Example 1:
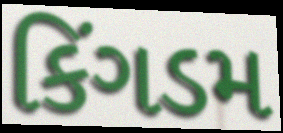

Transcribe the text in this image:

કિંગડમ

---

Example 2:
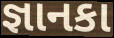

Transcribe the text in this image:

જ્ઞાનકા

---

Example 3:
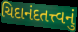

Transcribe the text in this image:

ચિદાનંદતત્ત્વનું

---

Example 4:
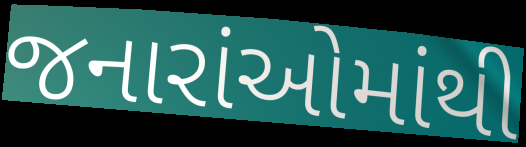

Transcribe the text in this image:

જનારાંઓમાંથી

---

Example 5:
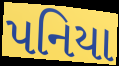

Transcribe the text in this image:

પનિયા